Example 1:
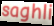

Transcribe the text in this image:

saghli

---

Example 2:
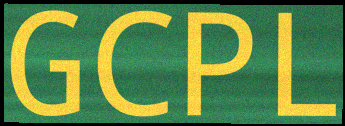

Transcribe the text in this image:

GCPL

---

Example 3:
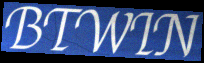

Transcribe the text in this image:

BTWIN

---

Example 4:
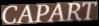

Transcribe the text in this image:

CAPART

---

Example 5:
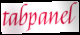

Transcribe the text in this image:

tabpanel